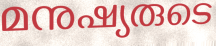
മനുഷ്യരുടെ